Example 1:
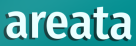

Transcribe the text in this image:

areata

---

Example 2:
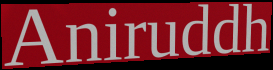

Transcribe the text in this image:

Aniruddh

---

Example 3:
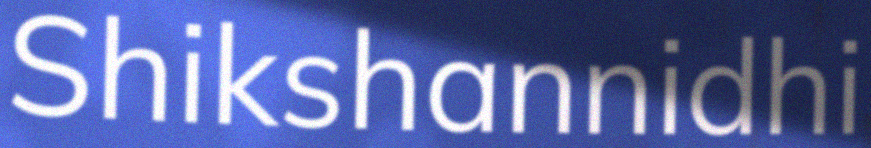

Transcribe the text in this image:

Shikshannidhi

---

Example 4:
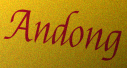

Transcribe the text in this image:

Andong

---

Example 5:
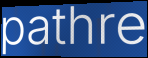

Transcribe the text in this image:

pathre